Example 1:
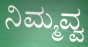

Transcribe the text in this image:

ನಿಮ್ಮವ್ವ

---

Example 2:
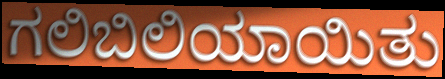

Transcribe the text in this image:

ಗಲಿಬಿಲಿಯಾಯಿತು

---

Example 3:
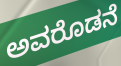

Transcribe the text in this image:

ಅವರೊಡನೆ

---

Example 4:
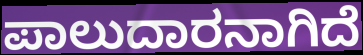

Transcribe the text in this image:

ಪಾಲುದಾರನಾಗಿದೆ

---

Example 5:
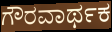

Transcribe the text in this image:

ಗೌರವಾರ್ಥಕ